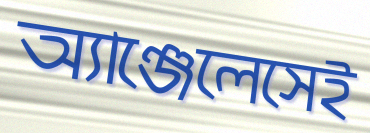
অ্যাঞ্জেলেসেই